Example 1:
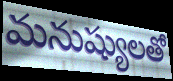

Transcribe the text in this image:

మనుష్యులతో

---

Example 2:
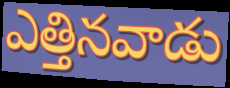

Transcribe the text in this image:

ఎత్తినవాడు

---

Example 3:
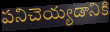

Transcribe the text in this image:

పనిచెయ్యడానికి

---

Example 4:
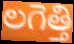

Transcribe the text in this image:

లగెత్తి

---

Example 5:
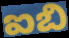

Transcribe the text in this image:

ఐబి